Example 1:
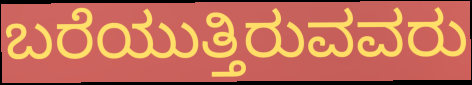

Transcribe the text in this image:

ಬರೆಯುತ್ತಿರುವವರು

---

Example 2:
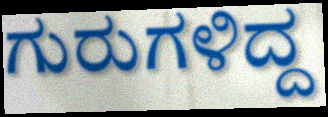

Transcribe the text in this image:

ಗುರುಗಳಿದ್ದ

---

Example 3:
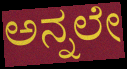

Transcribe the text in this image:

ಅನ್ನಲೇ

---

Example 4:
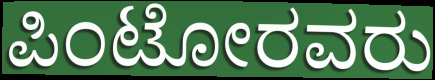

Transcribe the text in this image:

ಪಿಂಟೋರವರು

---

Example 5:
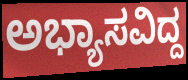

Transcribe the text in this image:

ಅಭ್ಯಾಸವಿದ್ದ